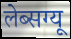
लेब्सग्यू